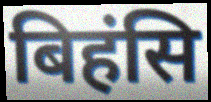
बिहंसि